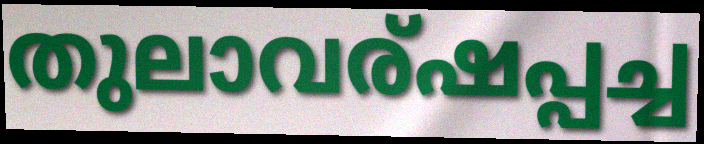
തുലാവര്ഷപ്പച്ച